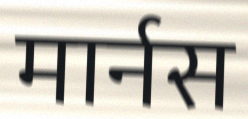
मार्नस